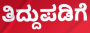
ತಿದ್ದುಪಡಿಗೆ